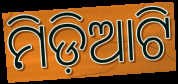
ମିଡ଼ିଆଟି